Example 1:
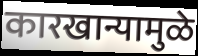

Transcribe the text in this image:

कारखान्यामुळे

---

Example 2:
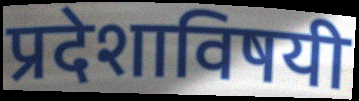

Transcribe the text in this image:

प्रदेशाविषयी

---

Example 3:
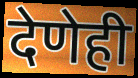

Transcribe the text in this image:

देणेही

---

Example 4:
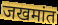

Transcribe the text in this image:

जखमांत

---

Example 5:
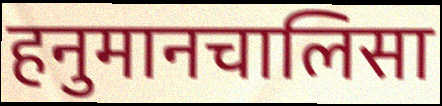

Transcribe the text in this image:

हनुमानचालिसा